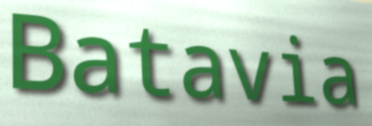
Batavia